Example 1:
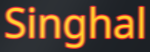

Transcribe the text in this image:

Singhal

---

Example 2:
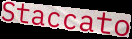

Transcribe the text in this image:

Staccato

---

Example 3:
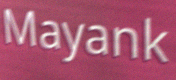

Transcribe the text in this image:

Mayank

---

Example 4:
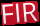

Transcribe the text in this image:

FIR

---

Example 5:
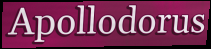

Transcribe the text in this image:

Apollodorus